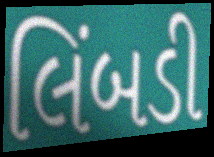
લિંબડી